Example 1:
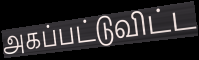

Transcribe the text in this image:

அகப்பட்டுவிட்ட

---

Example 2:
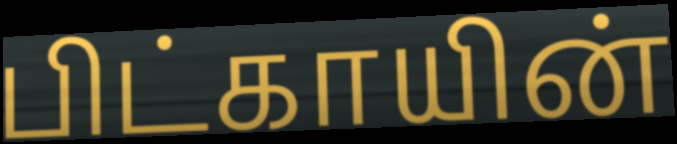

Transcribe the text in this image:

பிட்காயின்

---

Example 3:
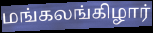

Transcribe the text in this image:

மங்கலங்கிழார்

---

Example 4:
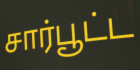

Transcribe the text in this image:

சார்பூட்ட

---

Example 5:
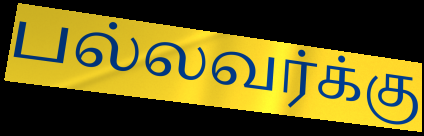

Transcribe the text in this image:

பல்லவர்க்கு